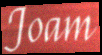
Joam